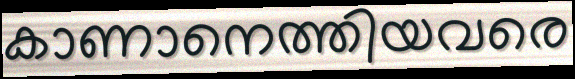
കാണാനെത്തിയവരെ